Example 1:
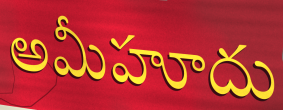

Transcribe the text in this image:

అమీహూదు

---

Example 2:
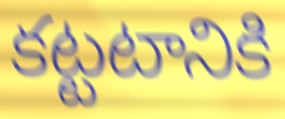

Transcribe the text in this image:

కట్టటానికి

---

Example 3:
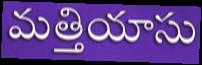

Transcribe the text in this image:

మత్తియాసు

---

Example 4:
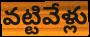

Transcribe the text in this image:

వట్టివేళ్లు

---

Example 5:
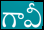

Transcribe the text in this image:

గావీ